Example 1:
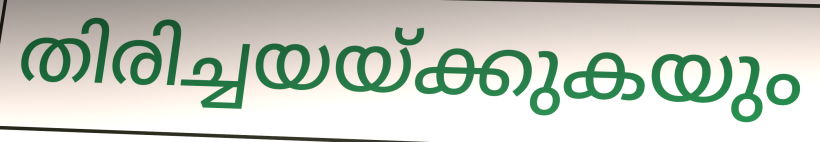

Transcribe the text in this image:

തിരിച്ചയയ്ക്കുകയും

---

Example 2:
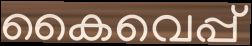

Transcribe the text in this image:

കൈവെപ്പ്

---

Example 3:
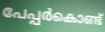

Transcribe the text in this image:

പേപ്പർകൊണ്ട്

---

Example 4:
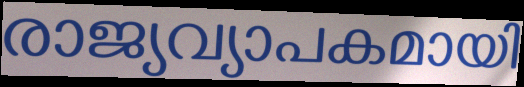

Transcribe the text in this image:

രാജ്യവ്യാപകമായി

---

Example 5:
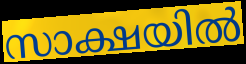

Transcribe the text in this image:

സാക്ഷയിൽ